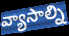
వ్యాసాల్ని